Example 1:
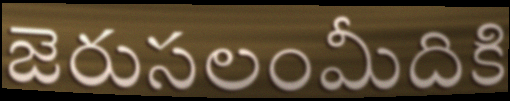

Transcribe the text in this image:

జెరుసలంమీదికి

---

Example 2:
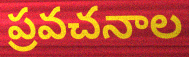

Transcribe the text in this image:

ప్రవచనాల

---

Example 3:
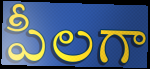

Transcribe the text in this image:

పీలగా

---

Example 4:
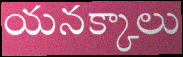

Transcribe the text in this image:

యనక్కాలు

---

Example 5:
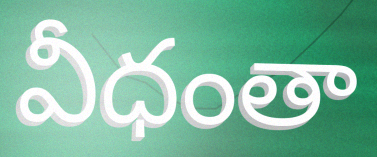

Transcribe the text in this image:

వీధంతా